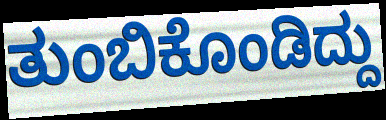
ತುಂಬಿಕೊಂಡಿದ್ದು